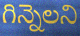
గిన్నెలని